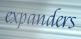
expanders